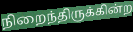
நிறைந்திருக்கின்ற